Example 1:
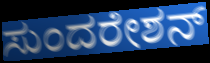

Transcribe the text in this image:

ಸುಂದರೇಶನ್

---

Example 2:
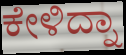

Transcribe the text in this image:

ಕೇಳಿದ್ನಾ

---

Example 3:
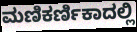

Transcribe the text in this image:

ಮಣಿಕರ್ಣಿಕಾದಲ್ಲಿ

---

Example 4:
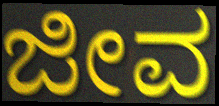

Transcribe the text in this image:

ಜೀವ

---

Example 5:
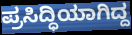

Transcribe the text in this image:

ಪ್ರಸಿದ್ಧಿಯಾಗಿದ್ದ